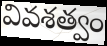
వివశత్వం